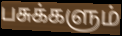
பசுக்களும்